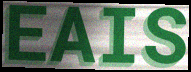
EAIS